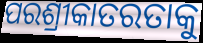
ପରଶ୍ରୀକାତରତାକୁ